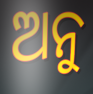
ଅନୁ